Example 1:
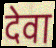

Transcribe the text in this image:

देवा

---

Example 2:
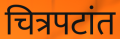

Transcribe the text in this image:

चित्रपटांत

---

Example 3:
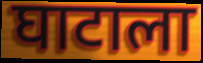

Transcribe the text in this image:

घाटाला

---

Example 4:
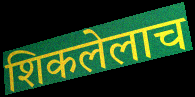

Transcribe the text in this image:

शिकलेलाच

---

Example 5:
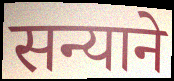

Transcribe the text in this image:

सन्याने